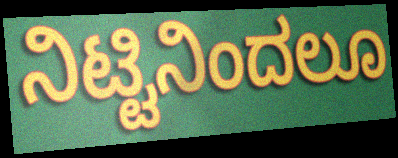
ನಿಟ್ಟಿನಿಂದಲೂ